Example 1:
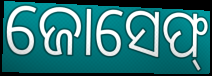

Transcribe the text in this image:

ଜୋସେଫ୍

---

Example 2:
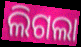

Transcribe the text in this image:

ଲିଗଲା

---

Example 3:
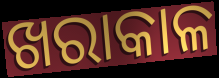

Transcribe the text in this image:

ଖରାକାଳ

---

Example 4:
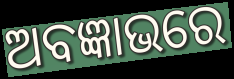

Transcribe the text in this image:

ଅବଜ୍ଞାଭରେ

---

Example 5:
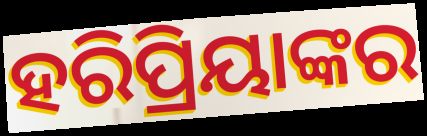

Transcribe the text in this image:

ହରିପ୍ରିୟାଙ୍କର